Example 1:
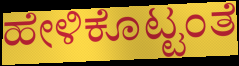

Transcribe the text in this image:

ಹೇಳಿಕೊಟ್ಟಂತೆ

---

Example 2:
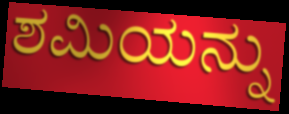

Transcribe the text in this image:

ಶಮಿಯನ್ನು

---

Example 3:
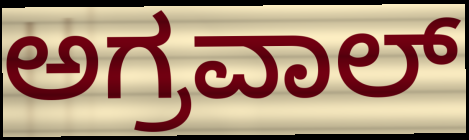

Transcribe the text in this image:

ಅಗ್ರವಾಲ್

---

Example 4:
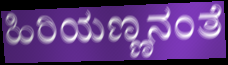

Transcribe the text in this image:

ಹಿರಿಯಣ್ಣನಂತೆ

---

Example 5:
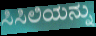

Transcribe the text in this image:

ಸಿಸಿಲಿಯನ್ನು